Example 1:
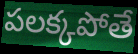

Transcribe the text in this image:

పలక్కపోతే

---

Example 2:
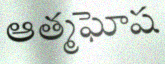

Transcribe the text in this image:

ఆత్మఘోష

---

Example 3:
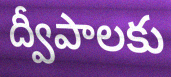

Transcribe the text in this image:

ద్వీపాలకు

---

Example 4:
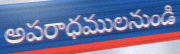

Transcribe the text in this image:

అపరాధములనుండి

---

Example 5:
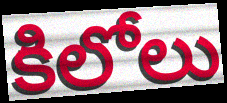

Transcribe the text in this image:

కిలోలు